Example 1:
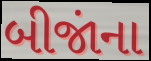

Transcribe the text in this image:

બીજાંના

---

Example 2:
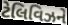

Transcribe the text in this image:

ટેલિવિઝને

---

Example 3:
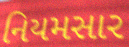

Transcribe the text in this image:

નિયમસાર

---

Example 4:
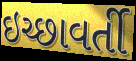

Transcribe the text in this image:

ઇચ્છાવર્તી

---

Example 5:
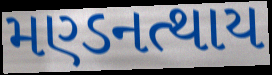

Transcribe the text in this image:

મણ્ડનત્થાય